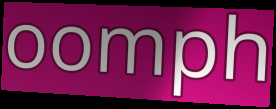
oomph